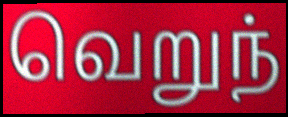
வெறுந்